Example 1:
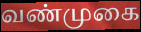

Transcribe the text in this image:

வண்முகை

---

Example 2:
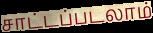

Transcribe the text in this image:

சாட்டப்படலாம்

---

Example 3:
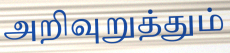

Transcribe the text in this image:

அறிவுறுத்தும்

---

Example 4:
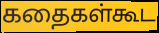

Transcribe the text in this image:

கதைகள்கூட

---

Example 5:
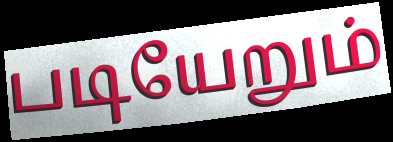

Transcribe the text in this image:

படியேறும்